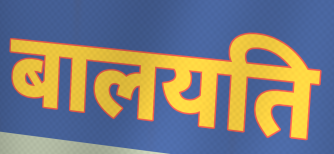
बालयति